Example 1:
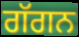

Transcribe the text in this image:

ਗੱਗਨ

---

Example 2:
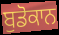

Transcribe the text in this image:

ਬੁਡੋਕਾਨ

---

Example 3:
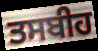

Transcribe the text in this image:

ਤਸਬੀਹ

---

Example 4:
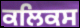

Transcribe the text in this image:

ਕਲਿਕਸ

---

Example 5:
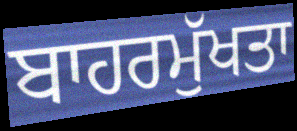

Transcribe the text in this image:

ਬਾਹਰਮੁੱਖਤਾ